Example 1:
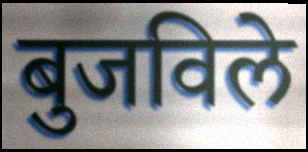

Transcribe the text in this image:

बुजविले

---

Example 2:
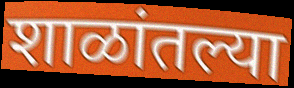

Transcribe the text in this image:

शाळांतल्या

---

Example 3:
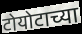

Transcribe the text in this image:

टोयोटाच्या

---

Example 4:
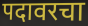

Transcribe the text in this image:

पदावरचा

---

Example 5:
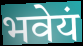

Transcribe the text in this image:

भवेयं